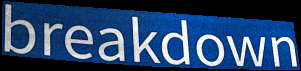
breakdown